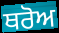
ਥਰੋਅ